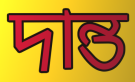
দান্ত